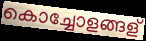
കൊച്ചോളങ്ങള്